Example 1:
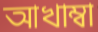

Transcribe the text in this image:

আখাম্বা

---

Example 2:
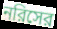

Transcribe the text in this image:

নরিসের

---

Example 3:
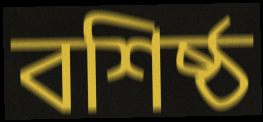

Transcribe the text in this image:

বশিষ্ঠ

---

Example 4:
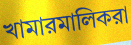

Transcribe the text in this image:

খামারমালিকরা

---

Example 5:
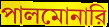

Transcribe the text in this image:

পালমোনারি